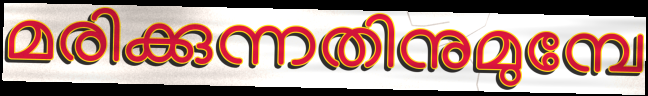
മരിക്കുന്നതിനുമുമ്പേ